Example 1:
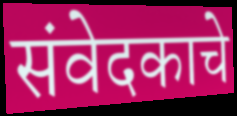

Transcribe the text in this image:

संवेदकाचे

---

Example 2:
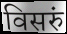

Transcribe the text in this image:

विसरुं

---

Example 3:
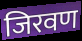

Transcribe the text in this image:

जिरवण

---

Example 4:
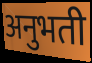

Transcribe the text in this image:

अनुभती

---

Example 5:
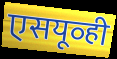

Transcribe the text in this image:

एसयूव्ही